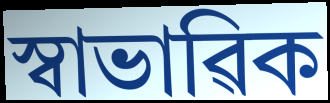
স্বাভাৱিক